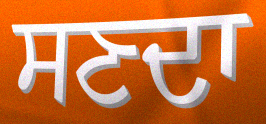
ਸਣਦਾ